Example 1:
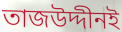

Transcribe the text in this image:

তাজউদ্দীনই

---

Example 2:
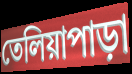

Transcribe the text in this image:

তেলিয়াপাড়া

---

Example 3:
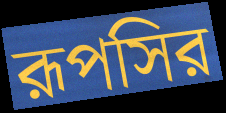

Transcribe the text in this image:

রূপসির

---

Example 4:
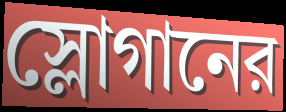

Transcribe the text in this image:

স্লোগানের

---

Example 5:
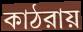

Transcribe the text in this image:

কাঠরায়